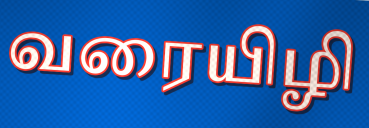
வரையிழி